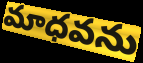
మాధవను